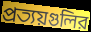
প্রত্যয়গুলির